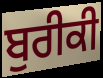
ਬੁਰੀਕੀ